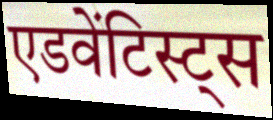
एडवेंटिस्ट्स